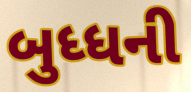
બુધ્ધની